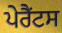
ਪੇਰੈਂਟਸ